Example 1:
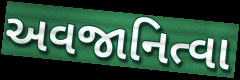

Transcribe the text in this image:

અવજાનિત્વા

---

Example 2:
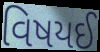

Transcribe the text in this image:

વિષયઈ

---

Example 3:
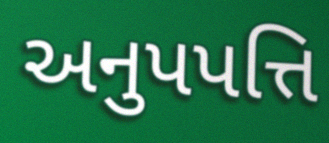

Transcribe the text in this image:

અનુપપત્તિ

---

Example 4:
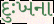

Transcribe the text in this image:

દુઃખના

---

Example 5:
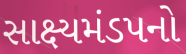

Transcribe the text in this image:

સાક્ષ્યમંડપનો